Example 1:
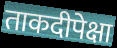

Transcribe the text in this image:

ताकदीपेक्षा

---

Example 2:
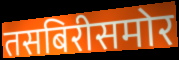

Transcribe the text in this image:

तसबिरीसमोर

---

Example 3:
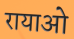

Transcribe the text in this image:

रायाओ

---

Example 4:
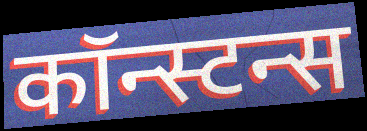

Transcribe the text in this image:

कॉन्स्टन्स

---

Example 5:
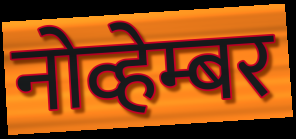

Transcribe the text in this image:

नोव्हेम्बर